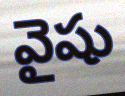
వైషు